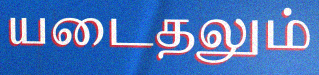
யடைதலும்